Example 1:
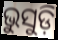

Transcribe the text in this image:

ଭୁସୁଡ଼ି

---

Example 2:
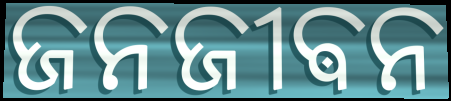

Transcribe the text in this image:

ଜନଜୀଵନ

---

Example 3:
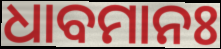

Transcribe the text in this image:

ଧାବମାନଃ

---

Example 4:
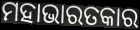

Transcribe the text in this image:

ମହାଭାରତକାର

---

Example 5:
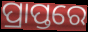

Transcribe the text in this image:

ପ୍ରାପ୍ତରେ